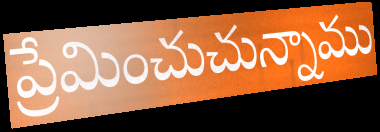
ప్రేమించుచున్నాము